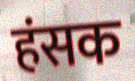
हंसक